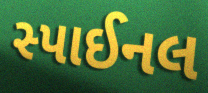
સ્પાઈનલ